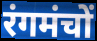
रंगमंचों